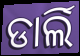
ଡାର୍ଲି